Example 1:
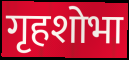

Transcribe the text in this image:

गृहशोभा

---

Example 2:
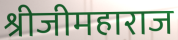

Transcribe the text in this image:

श्रीजीमहाराज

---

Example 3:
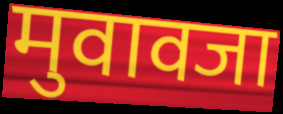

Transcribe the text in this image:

मुवावजा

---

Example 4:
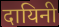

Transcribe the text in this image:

दायिनी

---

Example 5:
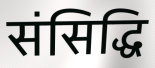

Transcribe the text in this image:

संसिद्धि